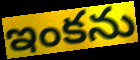
ఇంకను